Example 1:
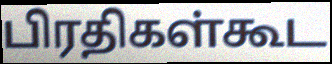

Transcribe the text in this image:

பிரதிகள்கூட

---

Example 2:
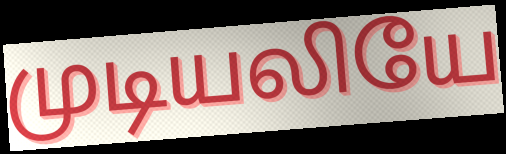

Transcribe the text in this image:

முடியலியே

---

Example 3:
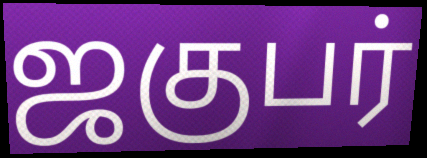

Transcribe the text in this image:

ஜகுபர்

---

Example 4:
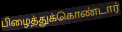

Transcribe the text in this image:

பிழைத்துக்கொண்டார்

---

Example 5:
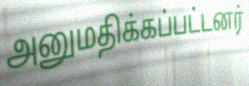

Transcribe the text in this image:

அனுமதிக்கப்பட்டனர்